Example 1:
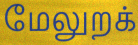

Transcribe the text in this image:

மேலுறக்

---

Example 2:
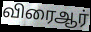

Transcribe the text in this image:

விரைஆர்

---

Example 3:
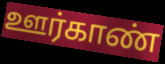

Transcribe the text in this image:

ஊர்காண்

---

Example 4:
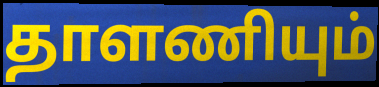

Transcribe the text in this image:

தாளணியும்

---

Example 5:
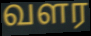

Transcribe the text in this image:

வளர